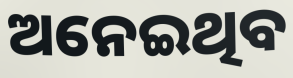
ଅନେଇଥିବ